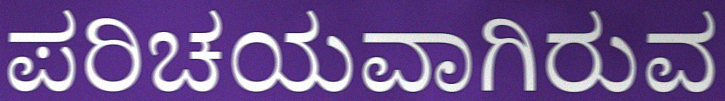
ಪರಿಚಯವಾಗಿರುವ